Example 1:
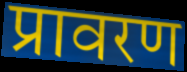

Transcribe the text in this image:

प्रावरण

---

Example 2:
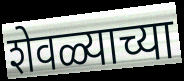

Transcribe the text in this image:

शेवळ्याच्या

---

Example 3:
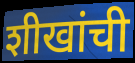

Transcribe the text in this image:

शीखांची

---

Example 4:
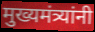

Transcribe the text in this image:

मुख्यमंत्र्यांनी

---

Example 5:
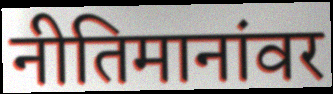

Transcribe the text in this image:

नीतिमानांवर